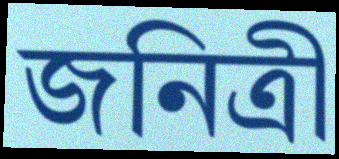
জনিত্রী